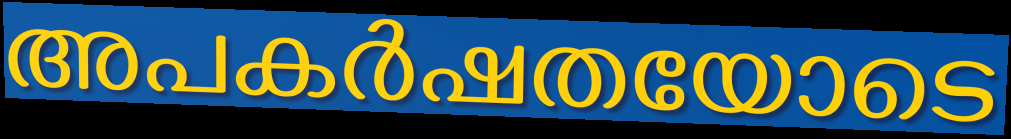
അപകർഷതയോടെ